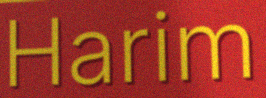
Harim